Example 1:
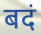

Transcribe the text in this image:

बदं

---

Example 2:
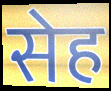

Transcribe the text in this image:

सेह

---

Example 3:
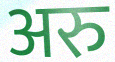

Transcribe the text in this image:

अरु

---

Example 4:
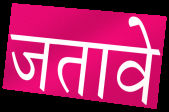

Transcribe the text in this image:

जतावे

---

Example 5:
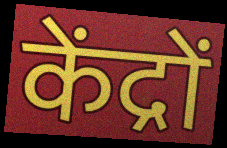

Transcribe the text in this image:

केंद्रों